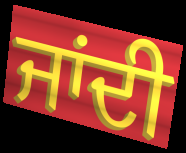
ਜਾਂਦੀ